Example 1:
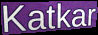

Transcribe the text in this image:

Katkar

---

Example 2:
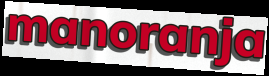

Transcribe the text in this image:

manoranja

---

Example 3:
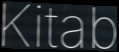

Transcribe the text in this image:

Kitab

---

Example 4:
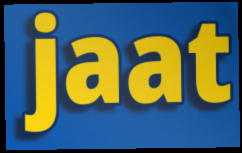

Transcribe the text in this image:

jaat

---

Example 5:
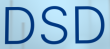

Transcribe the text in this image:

DSD